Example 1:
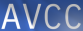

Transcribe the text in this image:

AVCC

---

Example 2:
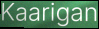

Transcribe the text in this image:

Kaarigan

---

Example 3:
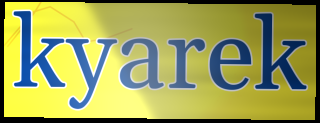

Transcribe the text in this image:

kyarek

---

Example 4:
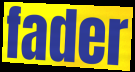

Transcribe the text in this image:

fader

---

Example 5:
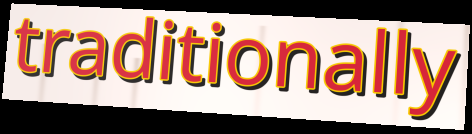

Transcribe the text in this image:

traditionally